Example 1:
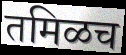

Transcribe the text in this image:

तमिळच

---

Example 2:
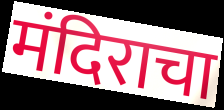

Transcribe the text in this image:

मंदिराचा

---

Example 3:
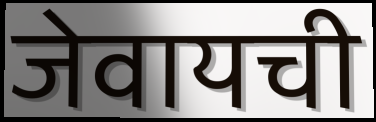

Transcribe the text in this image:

जेवायची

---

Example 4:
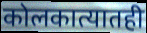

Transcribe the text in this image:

कोलकात्यातही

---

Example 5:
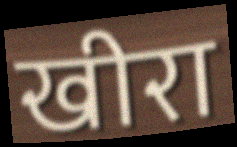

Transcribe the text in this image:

खीरा